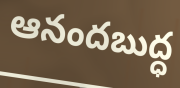
ఆనందబుద్ధ